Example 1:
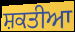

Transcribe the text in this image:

ਸ਼ਕਤੀਆ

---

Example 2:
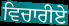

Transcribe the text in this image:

ਵਿਚਾਰੀਏ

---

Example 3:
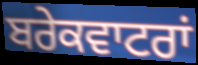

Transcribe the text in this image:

ਬਰੇਕਵਾਟਰਾਂ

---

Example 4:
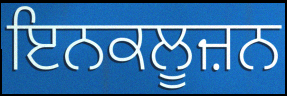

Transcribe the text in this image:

ਇਨਕਲੂਜ਼ਨ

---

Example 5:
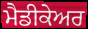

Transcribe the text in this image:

ਮੈਡੀਕੇਅਰ